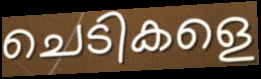
ചെടികളെ